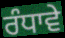
ਰੰਧਾਵੇ